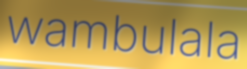
wambulala